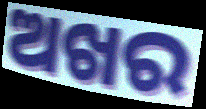
ଅଖର